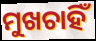
ମୁଖଚାହିଁ